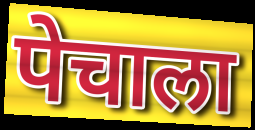
पेचाला